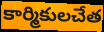
కార్మికులచేత